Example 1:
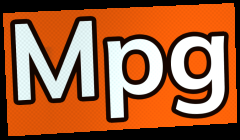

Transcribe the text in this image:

Mpg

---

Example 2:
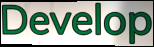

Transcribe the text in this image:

Develop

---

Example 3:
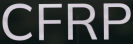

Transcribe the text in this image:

CFRP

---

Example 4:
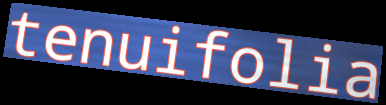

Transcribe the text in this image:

tenuifolia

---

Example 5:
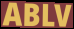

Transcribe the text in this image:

ABLV